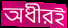
অধীরই